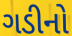
ગડીનો